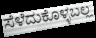
ಸೆಳೆದುಕೊಳ್ಳಬಲ್ಲ